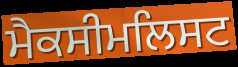
ਮੈਕਸੀਮਲਿਸਟ